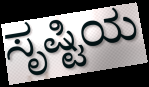
ಸೃಷ್ಟಿಯ